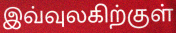
இவ்வுலகிற்குள்